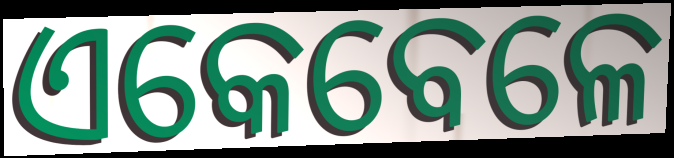
ଏକେବେଳେ